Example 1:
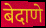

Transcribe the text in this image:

बेदाणे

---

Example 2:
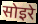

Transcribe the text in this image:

सोइरे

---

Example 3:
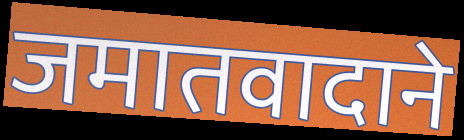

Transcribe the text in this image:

जमातवादाने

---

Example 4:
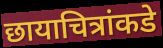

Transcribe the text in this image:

छायाचित्रांकडे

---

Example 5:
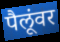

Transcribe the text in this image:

पैलूंवर